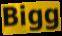
Bigg